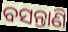
ବସନ୍ତାଣି